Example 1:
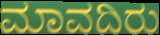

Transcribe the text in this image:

ಮಾವದಿರು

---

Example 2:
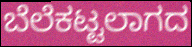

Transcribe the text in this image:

ಬೆಲೆಕಟ್ಟಲಾಗದ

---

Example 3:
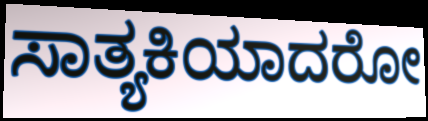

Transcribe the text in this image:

ಸಾತ್ಯಕಿಯಾದರೋ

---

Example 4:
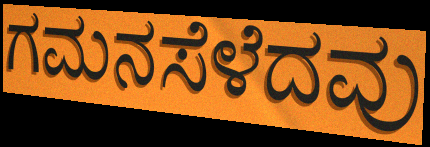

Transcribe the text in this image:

ಗಮನಸೆಳೆದವು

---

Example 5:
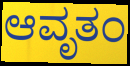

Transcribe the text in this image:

ಆವೃತಂ